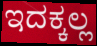
ಇದಕ್ಕಲ್ಲ